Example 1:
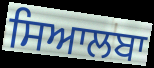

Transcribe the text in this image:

ਸਿਆਲਬਾ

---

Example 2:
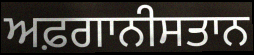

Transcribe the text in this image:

ਅਫ਼ਗਾਨੀਸਤਾਨ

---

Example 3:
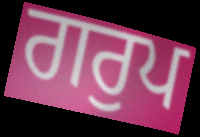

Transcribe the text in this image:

ਗਰੁਪ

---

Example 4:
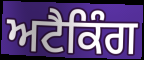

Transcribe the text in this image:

ਅਟੈਕਿੰਗ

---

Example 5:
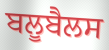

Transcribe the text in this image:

ਬਲੂਬੈਲਸ